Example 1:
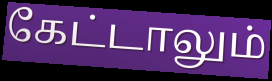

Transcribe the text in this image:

கேட்டாலும்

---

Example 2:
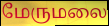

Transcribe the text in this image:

மேருமலை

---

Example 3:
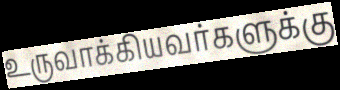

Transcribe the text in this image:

உருவாக்கியவர்களுக்கு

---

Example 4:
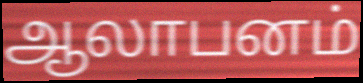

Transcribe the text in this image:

ஆலாபனம்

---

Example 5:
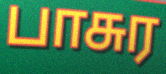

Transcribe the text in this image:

பாசுர